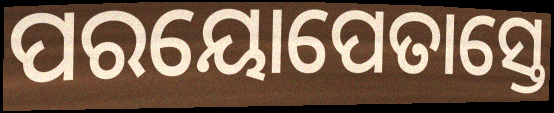
ପରୟୋପେତାସ୍ତେ